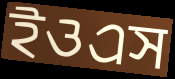
ইওএস